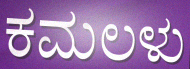
ಕಮಲಳು